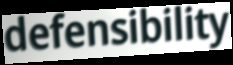
defensibility